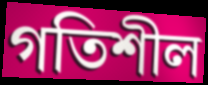
গতিশীল